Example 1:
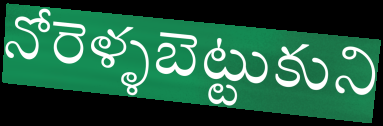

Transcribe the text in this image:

నోరెళ్ళబెట్టుకుని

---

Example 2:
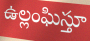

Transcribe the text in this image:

ఉల్లంఘిస్తూ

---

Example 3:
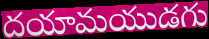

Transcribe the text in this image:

దయామయుడగు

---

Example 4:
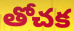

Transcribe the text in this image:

తోచక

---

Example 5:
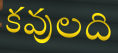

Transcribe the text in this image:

కవులది